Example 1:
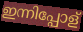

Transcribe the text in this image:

ഇന്നിപ്പോള്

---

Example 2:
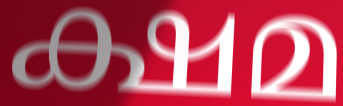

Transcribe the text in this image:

ക്ഷമ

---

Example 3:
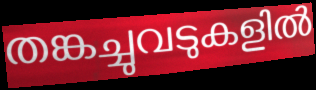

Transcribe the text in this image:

തങ്കച്ചുവടുകളിൽ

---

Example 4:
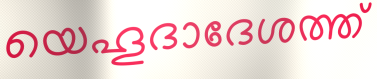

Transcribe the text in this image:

യെഹൂദാദേശത്ത്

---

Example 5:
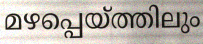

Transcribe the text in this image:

മഴപ്പെയ്ത്തിലും